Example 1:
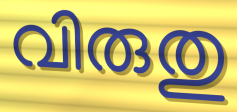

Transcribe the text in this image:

വിരുതു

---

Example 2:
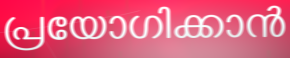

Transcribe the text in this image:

പ്രയോഗിക്കാൻ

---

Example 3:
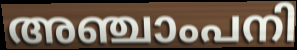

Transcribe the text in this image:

അഞ്ചാംപനി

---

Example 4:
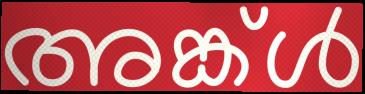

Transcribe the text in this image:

അങ്ക്ൾ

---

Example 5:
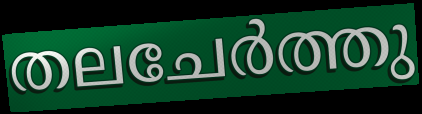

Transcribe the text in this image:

തലചേർത്തു